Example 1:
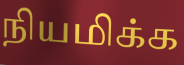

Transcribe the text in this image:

நியமிக்க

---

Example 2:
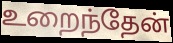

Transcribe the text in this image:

உறைந்தேன்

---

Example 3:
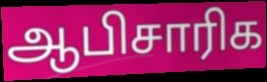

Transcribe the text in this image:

ஆபிசாரிக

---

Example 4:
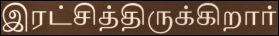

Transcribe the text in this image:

இரட்சித்திருக்கிறார்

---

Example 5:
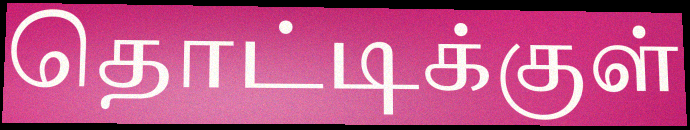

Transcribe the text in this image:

தொட்டிக்குள்